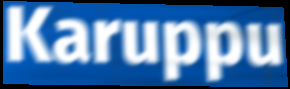
Karuppu